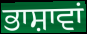
ਭਾਸ਼ਾਵਾਂ